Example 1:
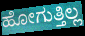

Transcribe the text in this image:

ಹೋಗುತ್ತಿಲ್ಲ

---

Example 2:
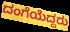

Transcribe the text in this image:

ದಂಗೆಯೆದ್ದರು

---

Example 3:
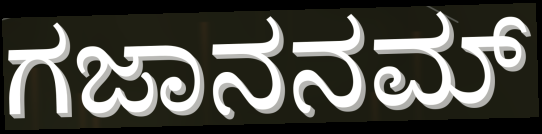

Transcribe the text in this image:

ಗಜಾನನಮ್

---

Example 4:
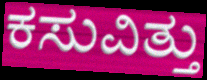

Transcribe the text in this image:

ಕಸುವಿತ್ತು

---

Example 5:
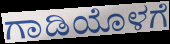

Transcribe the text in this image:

ಗಾಡಿಯೊಳಗೆ